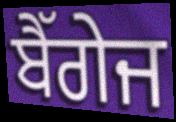
ਬੈੱਗੇਜ